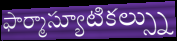
ఫార్మాస్యూటికల్స్ను